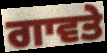
ਗਾਵਤੇ